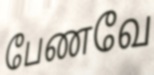
பேணவே